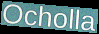
Ocholla